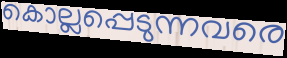
കൊല്ലപ്പെടുന്നവരെ